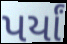
પર્યાં